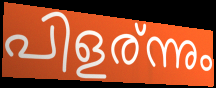
പിളര്ന്നും